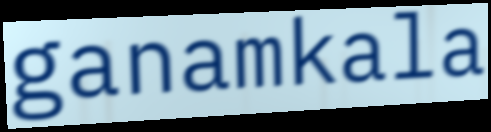
ganamkala